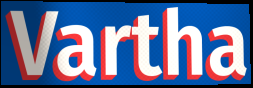
Vartha